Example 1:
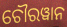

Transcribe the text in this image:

ଚୌରୱାନ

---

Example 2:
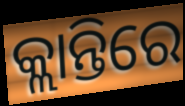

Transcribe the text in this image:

କ୍ଲାନ୍ତିରେ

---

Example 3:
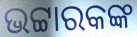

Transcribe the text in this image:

ଭଟ୍ଟାରକଙ୍କ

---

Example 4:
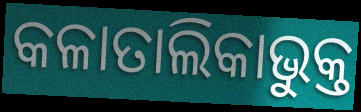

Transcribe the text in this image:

କଳାତାଲିକାଭୁକ୍ତ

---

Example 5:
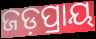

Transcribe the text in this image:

ଜଡ଼ପ୍ରାୟ